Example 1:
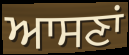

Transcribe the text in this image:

ਆਸਣਾਂ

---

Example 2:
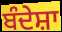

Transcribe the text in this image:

ਬੰਦੇਸ਼ਾ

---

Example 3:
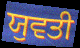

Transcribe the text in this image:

ਯੁਵਤੀ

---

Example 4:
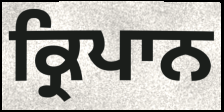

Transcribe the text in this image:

ਕ੍ਰਿਪਾਨ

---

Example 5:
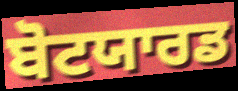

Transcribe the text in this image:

ਬੋਟਯਾਰਡ